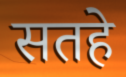
सतहे